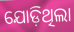
ଯୋଡ଼ିଥିଲା